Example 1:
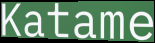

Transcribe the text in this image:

Katame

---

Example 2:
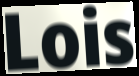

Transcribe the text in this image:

Lois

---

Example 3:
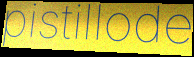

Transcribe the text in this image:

pistillode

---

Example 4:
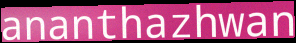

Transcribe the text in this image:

ananthazhwan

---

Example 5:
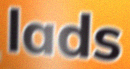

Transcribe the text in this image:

lads